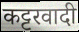
कट्टरवादी